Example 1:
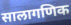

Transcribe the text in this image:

सालागणिक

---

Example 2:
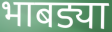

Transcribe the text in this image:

भाबड्या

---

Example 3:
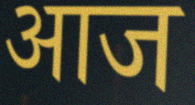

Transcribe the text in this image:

आज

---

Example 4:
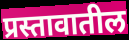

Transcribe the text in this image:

प्रस्तावातील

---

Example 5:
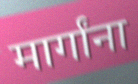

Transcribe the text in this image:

मार्गांना